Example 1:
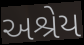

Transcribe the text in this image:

અશ્રેય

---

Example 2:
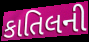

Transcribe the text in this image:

કાતિલની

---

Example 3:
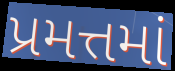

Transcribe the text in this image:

પ્રમત્તમાં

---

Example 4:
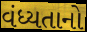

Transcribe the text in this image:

વંધ્યતાનો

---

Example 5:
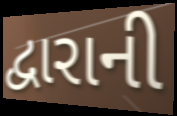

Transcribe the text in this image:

દ્વારાની